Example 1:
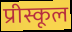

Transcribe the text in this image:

प्रीस्कूल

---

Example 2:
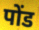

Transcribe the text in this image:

पोंड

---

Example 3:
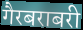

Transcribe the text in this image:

गैरबराबरी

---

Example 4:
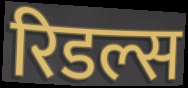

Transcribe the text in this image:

रिडल्स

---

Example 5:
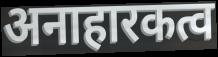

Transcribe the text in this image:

अनाहारकत्व